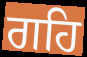
ਗਹਿ